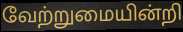
வேற்றுமையின்றி